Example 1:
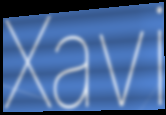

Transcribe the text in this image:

Xavi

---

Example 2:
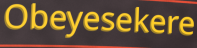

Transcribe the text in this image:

Obeyesekere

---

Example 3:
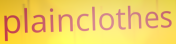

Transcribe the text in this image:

plainclothes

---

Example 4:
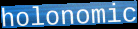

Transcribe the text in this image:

holonomic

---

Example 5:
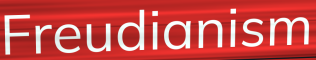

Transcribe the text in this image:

Freudianism